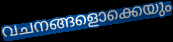
വചനങ്ങളൊക്കെയും